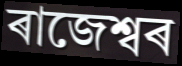
ৰাজেশ্বৰ